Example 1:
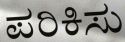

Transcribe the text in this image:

ಪರಿಕಿಸು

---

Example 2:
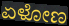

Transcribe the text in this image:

ಏಳೋಣ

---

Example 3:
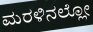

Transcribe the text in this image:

ಮರಳಿನಲ್ಲೋ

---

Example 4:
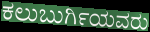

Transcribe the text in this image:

ಕಲುಬುರ್ಗಿಯವರು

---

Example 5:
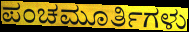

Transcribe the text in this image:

ಪಂಚಮೂರ್ತಿಗಳು